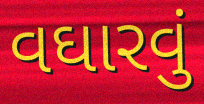
વઘારવું